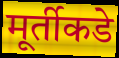
मूर्तीकडे